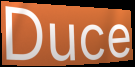
Duce